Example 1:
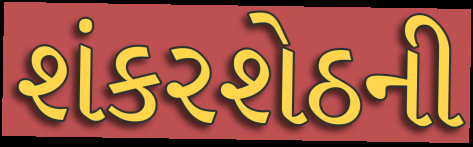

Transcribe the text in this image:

શંકરશેઠની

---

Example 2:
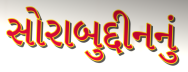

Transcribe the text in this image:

સોરાબુદ્દીનનું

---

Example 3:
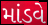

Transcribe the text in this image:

માંડવે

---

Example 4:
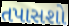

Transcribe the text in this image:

તપાસશો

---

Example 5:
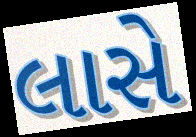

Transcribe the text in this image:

લાસે